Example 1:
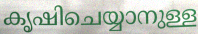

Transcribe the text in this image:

കൃഷിചെയ്യാനുള്ള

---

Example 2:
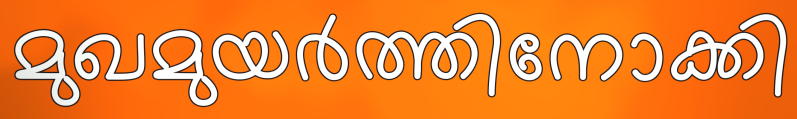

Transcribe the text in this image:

മുഖമുയർത്തിനോക്കി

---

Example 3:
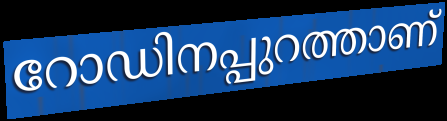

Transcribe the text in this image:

റോഡിനപ്പുറത്താണ്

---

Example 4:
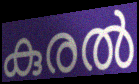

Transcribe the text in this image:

കുരൽ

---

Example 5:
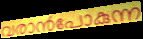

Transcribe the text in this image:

വരാൻപോകുന്ന